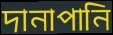
দানাপানি